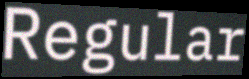
Regular